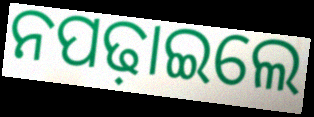
ନପଢ଼ାଇଲେ